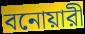
বনোয়ারী